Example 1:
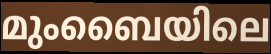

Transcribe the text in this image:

മുംബൈയിലെ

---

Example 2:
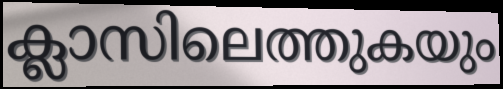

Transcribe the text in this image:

ക്ലാസിലെത്തുകയും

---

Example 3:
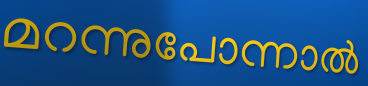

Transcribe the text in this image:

മറന്നുപോന്നാൽ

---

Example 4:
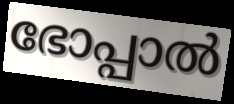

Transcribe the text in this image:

ഭോപ്പാൽ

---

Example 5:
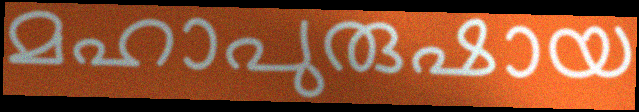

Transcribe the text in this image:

മഹാപുരുഷായ